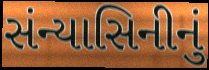
સંન્યાસિનીનું